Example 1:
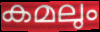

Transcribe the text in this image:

കമലും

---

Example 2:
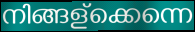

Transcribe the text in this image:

നിങ്ങള്ക്കെന്നെ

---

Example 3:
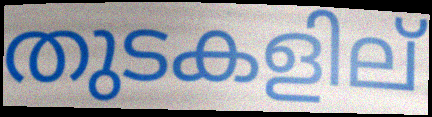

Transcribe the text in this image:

തുടകളില്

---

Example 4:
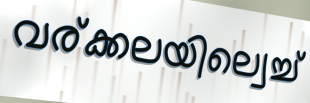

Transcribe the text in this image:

വര്ക്കലയില്വെച്ച്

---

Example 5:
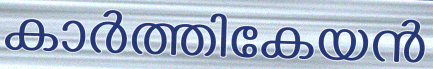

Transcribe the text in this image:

കാർത്തികേയൻ